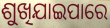
ଶୁଖିଯାଇପାରେ